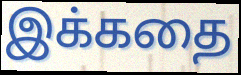
இக்கதை